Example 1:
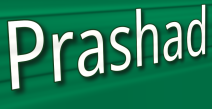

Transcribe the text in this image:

Prashad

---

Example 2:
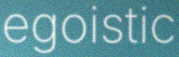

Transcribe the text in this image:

egoistic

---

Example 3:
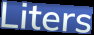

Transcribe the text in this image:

Liters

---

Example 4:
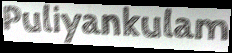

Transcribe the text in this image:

Puliyankulam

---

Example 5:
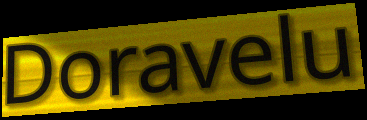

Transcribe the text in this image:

Doravelu